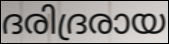
ദരിദ്രരായ